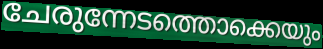
ചേരുന്നേടത്തൊക്കെയും